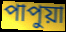
পাপুয়া